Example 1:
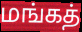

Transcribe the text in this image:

மங்கத்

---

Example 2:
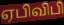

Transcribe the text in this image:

ஏபிவிபி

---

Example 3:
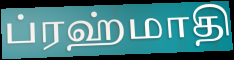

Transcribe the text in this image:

ப்ரஹ்மாதி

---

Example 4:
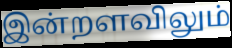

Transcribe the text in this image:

இன்றளவிலும்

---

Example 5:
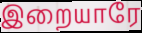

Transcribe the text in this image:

இறையாரே